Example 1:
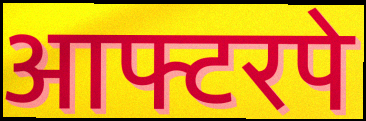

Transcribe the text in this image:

आफ्टरपे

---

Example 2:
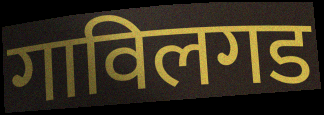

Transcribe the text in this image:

गाविलगड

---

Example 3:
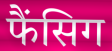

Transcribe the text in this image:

फैंसिग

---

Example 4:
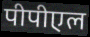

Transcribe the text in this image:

पीपीएल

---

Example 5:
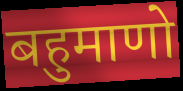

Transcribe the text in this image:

बहुमाणो